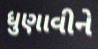
ધુણાવીને